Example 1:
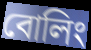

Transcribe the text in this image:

বোলিং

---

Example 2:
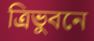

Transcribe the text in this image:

ত্রিভুবনে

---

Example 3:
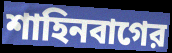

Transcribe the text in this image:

শাহিনবাগের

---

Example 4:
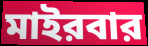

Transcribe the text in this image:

মাইরবার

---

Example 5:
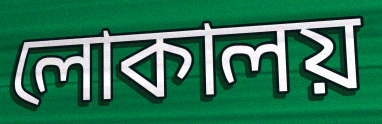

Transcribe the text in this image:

লোকালয়